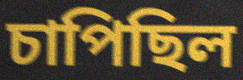
চাপিছিল